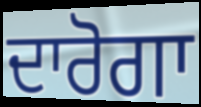
ਦਾਰੋਗਾ